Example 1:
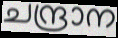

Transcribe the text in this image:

ചന്ദ്രാന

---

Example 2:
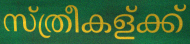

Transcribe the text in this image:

സ്ത്രീകള്ക്ക്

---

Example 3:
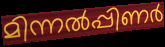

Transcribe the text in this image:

മിന്നൽപ്പിണർ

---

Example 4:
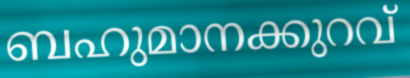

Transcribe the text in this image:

ബഹുമാനക്കുറവ്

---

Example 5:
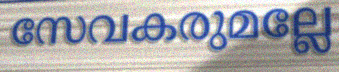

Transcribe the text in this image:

സേവകരുമല്ലേ